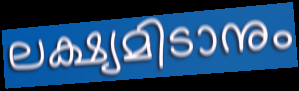
ലക്ഷ്യമിടാനും